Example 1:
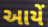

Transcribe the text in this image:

આયેં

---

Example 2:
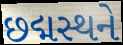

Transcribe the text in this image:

છદ્મસ્થને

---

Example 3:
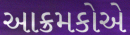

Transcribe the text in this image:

આક્રમકોએ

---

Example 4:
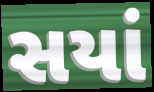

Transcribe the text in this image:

સયાં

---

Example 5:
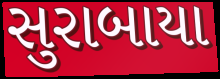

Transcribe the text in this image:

સુરાબાયા